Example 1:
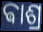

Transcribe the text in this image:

ଵାଶ୍ର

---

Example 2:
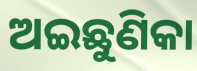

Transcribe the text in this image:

ଅଇଛୁଣିକା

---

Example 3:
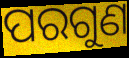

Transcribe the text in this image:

ପରଗୁଣ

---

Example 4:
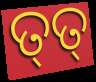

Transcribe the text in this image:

ତ୍‌ତ୍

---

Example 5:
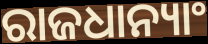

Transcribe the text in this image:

ରାଜଧାନ୍ୟାଂ